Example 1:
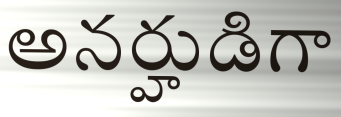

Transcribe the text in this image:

అనర్హుడిగా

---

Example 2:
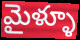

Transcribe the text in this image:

మైళ్ళూ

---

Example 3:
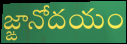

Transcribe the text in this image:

జ్ఙానోదయం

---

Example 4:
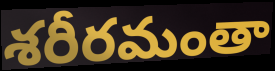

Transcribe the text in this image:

శరీరమంతా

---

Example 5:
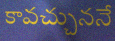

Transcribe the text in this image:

కావచ్చుననే